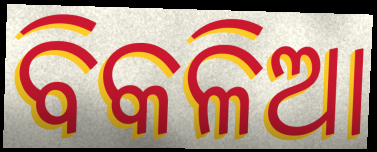
ବିକଳିଆ